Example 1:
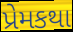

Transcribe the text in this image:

પ્રેમકથા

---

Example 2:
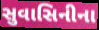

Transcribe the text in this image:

સુવાસિનીના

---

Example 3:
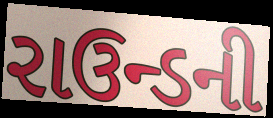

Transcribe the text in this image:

રાઉન્ડની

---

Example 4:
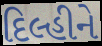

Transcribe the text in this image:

દિલ્હીને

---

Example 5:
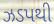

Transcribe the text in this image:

ઝડપથી